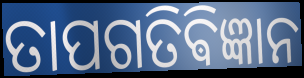
ତାପଗତିଵିଜ୍ଞାନ